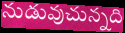
నుడువుచున్నది